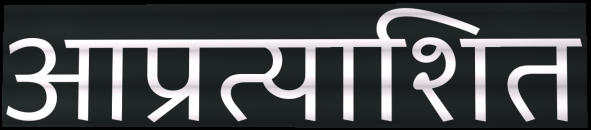
आप्रत्याशित